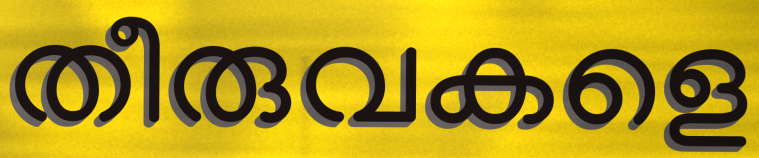
തീരുവകളെ